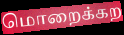
மொறைக்கற